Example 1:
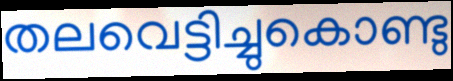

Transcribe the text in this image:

തലവെട്ടിച്ചുകൊണ്ടു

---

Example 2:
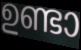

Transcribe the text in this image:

ഉണ്ടാ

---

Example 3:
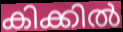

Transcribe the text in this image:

കിക്കിൽ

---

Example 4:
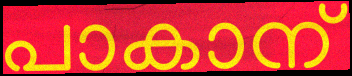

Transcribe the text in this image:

പാകാന്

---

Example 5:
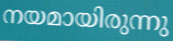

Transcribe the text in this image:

നയമായിരുന്നു